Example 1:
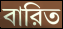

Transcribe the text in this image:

বারিত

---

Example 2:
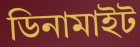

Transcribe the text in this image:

ডিনামাইট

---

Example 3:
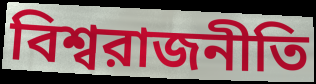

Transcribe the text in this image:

বিশ্বরাজনীতি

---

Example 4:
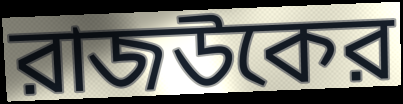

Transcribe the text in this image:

রাজউকের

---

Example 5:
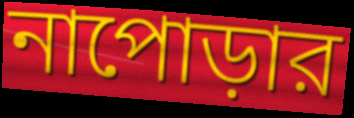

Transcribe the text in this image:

নাপোড়ার